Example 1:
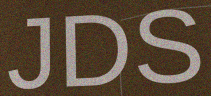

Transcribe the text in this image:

JDS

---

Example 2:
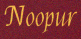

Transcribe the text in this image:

Noopur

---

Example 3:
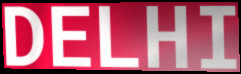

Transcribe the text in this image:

DELHI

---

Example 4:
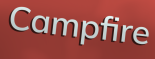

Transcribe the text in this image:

Campfire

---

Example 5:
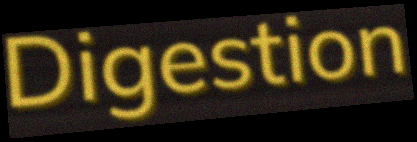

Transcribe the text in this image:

Digestion